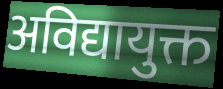
अविद्यायुक्त